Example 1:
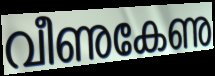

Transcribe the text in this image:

വീണുകേണു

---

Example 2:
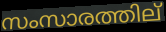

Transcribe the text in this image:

സംസാരത്തില്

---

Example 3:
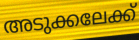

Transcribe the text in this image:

അടുക്കലേക്ക്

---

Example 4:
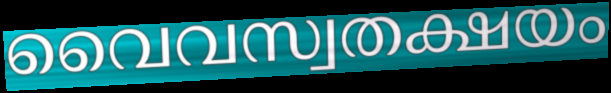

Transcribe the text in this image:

വൈവസ്വതക്ഷയം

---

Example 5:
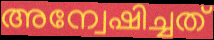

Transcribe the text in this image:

അന്വേഷിച്ചത്